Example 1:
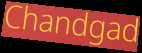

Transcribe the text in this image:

Chandgad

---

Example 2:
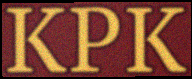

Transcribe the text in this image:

KPK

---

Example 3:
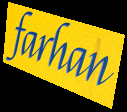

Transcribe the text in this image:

farhan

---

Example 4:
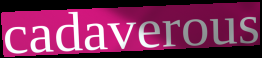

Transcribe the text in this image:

cadaverous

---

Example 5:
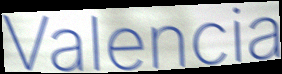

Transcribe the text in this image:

Valencia